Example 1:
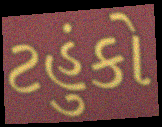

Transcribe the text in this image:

ટહુંકો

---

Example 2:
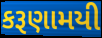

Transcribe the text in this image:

કરૂણામયી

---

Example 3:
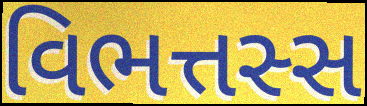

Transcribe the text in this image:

વિભત્તસ્સ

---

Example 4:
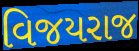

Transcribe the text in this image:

વિજયરાજ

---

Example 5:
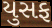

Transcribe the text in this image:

યુસફ